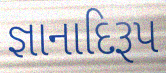
જ્ઞાનાદિરૂપ